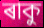
ৰাকু